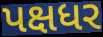
પક્ષધર